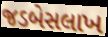
જડબેસલાખ